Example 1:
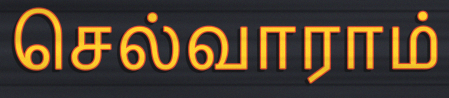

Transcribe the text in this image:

செல்வாராம்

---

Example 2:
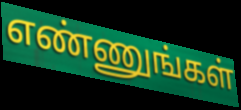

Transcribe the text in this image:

எண்ணுங்கள்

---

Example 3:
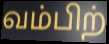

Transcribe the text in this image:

வம்பிற்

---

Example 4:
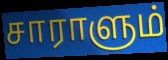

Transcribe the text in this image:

சாராளும்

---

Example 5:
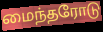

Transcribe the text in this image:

மைந்தரோடு